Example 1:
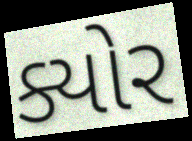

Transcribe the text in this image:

ક્યોર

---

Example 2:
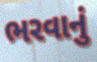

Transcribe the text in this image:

ભરવાનું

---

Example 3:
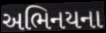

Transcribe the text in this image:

અભિનયના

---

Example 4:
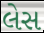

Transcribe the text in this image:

લેસ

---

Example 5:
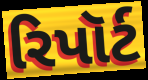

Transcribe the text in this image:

રિપૉર્ટ